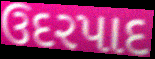
ઉદરપાદ